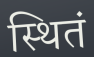
स्थितं